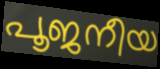
പൂജനീയ